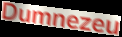
Dumnezeu